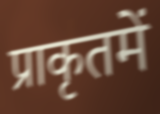
प्राकृतमें